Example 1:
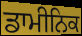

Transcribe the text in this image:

ਡਾਮੀਨਿਕ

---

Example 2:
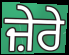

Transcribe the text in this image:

ਜ਼ੇਰੇ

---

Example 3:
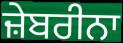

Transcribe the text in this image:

ਜ਼ੇਬਰੀਨਾ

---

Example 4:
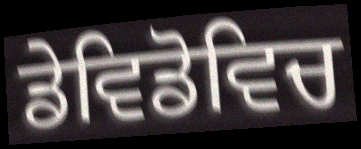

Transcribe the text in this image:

ਡੇਵਿਡੋਵਿਚ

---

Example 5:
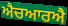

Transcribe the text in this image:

ਐਚਆਰਐ